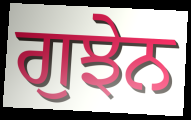
ਗੁਝੇਨ